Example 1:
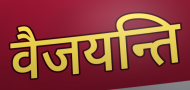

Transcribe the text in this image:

वैजयन्ति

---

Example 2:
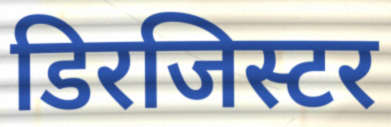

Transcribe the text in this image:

डिरजिस्टर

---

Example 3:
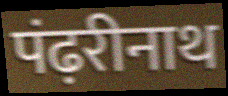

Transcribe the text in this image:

पंढ़रीनाथ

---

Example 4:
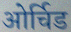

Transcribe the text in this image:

ओर्चिड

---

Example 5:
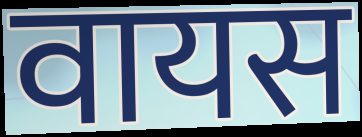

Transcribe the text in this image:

वायस